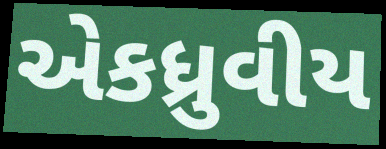
એકધ્રુવીય